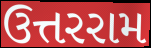
ઉત્તરરામ